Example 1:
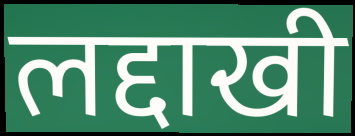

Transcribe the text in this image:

लद्दाखी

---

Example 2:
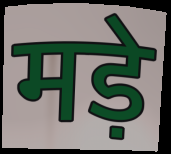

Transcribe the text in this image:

मड़े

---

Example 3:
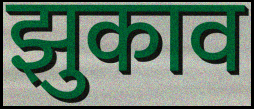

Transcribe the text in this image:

झुकाव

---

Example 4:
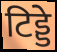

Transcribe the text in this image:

टिड्डे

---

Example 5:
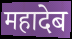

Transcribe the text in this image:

महादेब